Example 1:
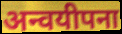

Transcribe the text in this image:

अन्वयीपना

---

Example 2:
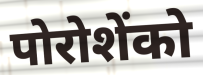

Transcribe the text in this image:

पोरोशेंको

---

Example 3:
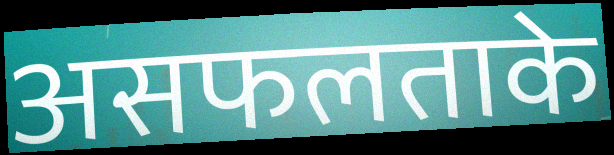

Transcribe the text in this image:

असफलताके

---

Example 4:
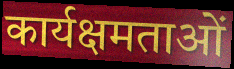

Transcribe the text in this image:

कार्यक्षमताओं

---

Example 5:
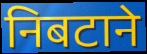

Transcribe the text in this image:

निबटाने